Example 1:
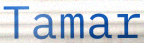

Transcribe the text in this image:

Tamar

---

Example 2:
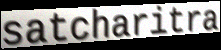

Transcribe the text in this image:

satcharitra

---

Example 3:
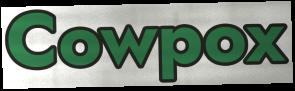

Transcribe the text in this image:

Cowpox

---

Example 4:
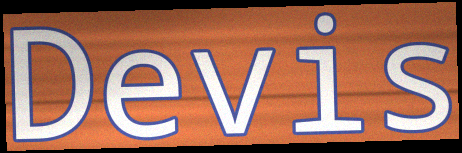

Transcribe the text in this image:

Devis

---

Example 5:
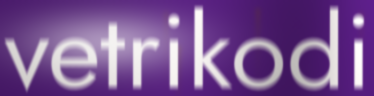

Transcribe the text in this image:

vetrikodi